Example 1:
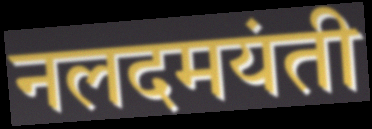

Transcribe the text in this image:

नलदमयंती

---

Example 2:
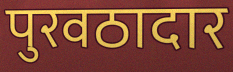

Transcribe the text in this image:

पुरवठादार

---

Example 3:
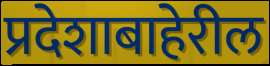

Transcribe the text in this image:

प्रदेशाबाहेरील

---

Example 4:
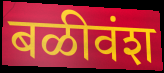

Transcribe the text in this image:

बळीवंश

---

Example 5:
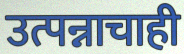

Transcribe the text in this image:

उत्पन्नाचाही